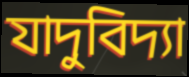
যাদুবিদ্যা